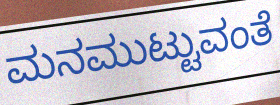
ಮನಮುಟ್ಟುವಂತೆ